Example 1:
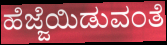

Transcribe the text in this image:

ಹೆಜ್ಜೆಯಿಡುವಂತೆ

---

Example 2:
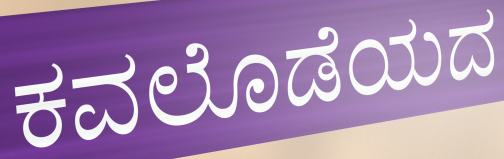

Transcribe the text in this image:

ಕವಲೊಡೆಯದ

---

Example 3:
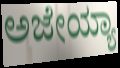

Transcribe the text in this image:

ಅಜೇಯ್ಯಾ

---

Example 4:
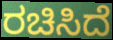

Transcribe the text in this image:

ರಚಿಸಿದೆ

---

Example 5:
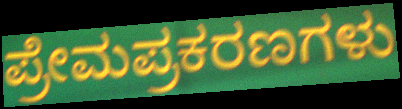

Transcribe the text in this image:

ಪ್ರೇಮಪ್ರಕರಣಗಳು